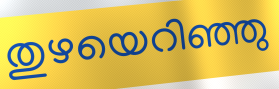
തുഴയെറിഞ്ഞു